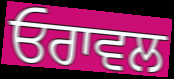
ਓਰਾਵਲ